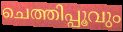
ചെത്തിപ്പൂവും